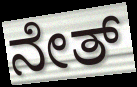
ನೇತ್